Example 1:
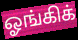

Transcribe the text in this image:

ஓங்கிக்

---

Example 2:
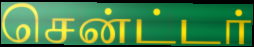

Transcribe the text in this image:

சென்ட்டர்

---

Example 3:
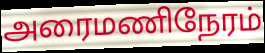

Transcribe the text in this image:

அரைமணிநேரம்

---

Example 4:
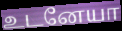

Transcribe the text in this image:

உடனேயா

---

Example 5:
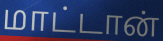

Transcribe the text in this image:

மாட்டான்